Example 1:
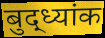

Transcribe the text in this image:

बुद्ध्यांक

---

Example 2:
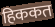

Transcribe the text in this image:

हिककत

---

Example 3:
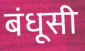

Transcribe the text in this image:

बंधूसी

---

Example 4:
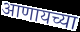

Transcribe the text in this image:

आणायच्या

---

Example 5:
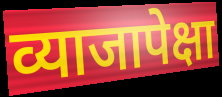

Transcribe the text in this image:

व्याजापेक्षा